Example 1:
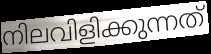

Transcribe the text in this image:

നിലവിളിക്കുന്നത്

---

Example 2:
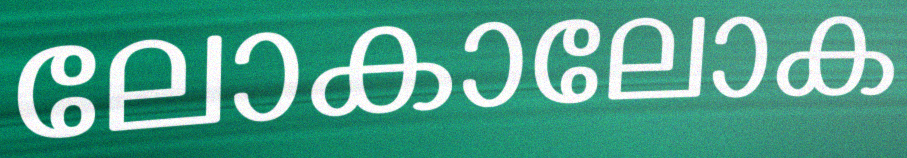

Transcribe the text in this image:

ലോകാലോക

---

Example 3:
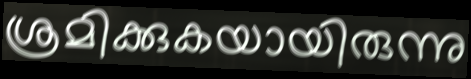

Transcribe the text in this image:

ശ്രമിക്കുകയായിരുന്നു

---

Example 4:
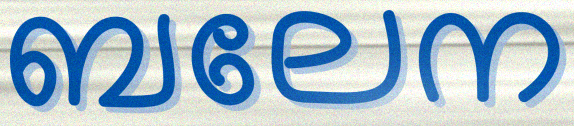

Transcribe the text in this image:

ബലേന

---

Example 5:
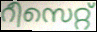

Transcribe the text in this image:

റീസെറ്റ്